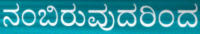
ನಂಬಿರುವುದರಿಂದ